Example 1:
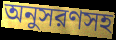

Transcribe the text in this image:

অনুসরণসহ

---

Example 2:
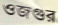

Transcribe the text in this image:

ওজগুর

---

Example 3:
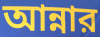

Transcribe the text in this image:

আন্নার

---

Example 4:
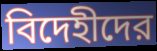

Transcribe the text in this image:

বিদেহীদের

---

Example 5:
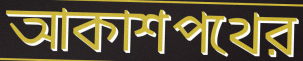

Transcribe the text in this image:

আকাশপথের